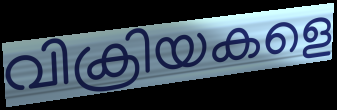
വിക്രിയകളെ